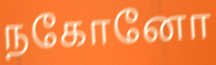
நகோனோ